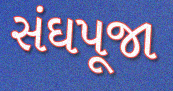
સંઘપૂજા